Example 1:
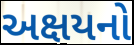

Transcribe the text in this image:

અક્ષયનો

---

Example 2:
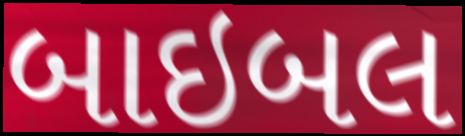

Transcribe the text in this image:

બાઇબલ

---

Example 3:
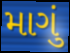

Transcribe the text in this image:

માગું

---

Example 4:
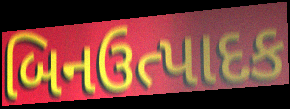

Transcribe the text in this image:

બિનઉત્પાદક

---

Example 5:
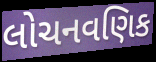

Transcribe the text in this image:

લોચનવણિક